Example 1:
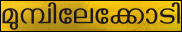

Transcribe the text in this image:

മുമ്പിലേക്കോടി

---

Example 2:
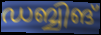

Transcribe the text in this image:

ഡബ്ബിങ്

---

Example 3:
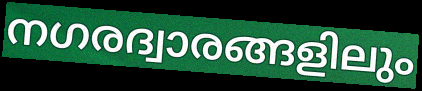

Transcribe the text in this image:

നഗരദ്വാരങ്ങളിലും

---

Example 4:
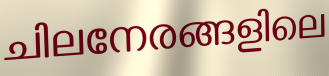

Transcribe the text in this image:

ചിലനേരങ്ങളിലെ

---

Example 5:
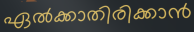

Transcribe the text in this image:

ഏൽക്കാതിരിക്കാൻ